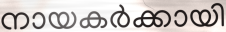
നായകർക്കായി